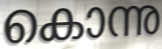
കൊന്നു